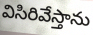
విసిరివేస్తాను